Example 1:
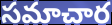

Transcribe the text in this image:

సమాచార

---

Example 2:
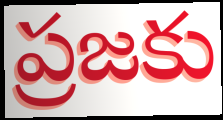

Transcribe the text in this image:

ప్రజకు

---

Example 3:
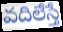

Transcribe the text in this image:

వదిలేస్తే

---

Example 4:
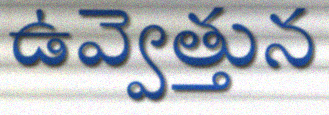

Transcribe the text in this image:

ఉవ్వెత్తున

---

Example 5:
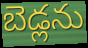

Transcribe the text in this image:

బెడ్లను